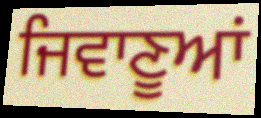
ਜਿਵਾਣੂਆਂ